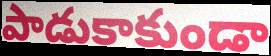
పాడుకాకుండా